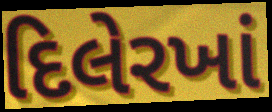
દિલેરખાં